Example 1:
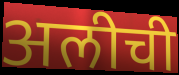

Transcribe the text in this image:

अलीची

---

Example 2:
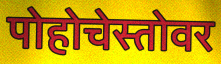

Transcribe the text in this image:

पोहोचेस्तोवर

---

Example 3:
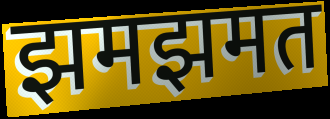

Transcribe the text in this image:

झमझमत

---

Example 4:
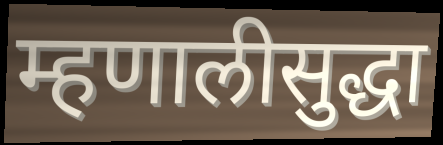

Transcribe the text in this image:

म्हणालीसुद्धा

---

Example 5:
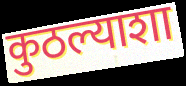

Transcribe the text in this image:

कुठल्याशा